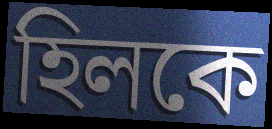
হিলকে